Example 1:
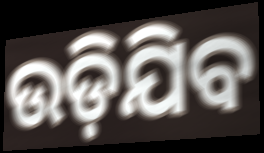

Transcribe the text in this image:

ଉଡ଼ିଯିବ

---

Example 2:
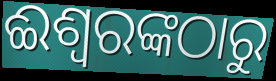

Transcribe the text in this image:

ଈଶ୍ଵରଙ୍କଠାରୁ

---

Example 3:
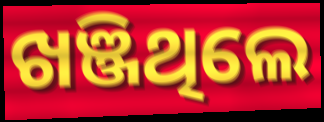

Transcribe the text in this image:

ଖଞ୍ଜିଥିଲେ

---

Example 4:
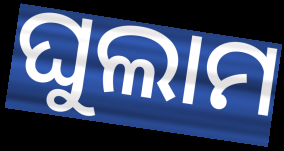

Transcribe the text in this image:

ଘୁଲାମ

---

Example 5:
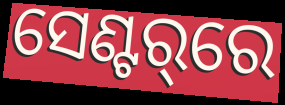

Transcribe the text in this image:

ସେଣ୍ଟର୍‌ରେ